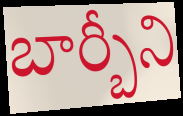
బార్బీని